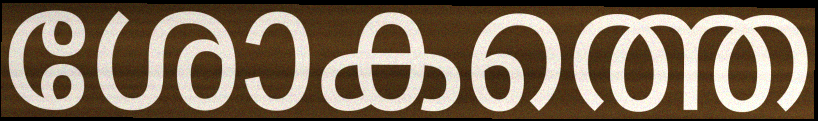
ശോകത്തെ